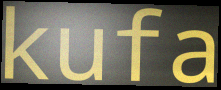
kufa